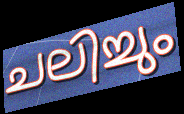
ചലിച്ചും